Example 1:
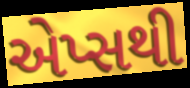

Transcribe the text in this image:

એપ્સથી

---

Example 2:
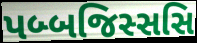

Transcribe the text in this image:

પબ્બજિસ્સસિ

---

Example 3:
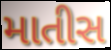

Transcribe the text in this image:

માતીસ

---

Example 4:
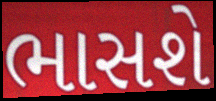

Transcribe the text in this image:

ભાસશે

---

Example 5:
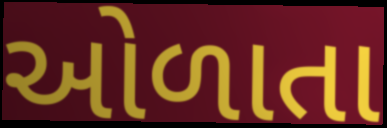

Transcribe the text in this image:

ઓળાતા